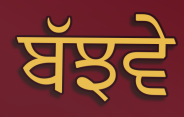
ਬੱਝਵੇ